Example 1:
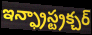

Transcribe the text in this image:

ఇన్ఫ్రాస్ట్రక్చర్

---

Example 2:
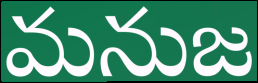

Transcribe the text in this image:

మనుజ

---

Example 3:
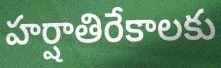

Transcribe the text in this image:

హర్షాతిరేకాలకు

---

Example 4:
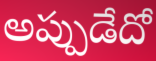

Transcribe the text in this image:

అప్పుడేదో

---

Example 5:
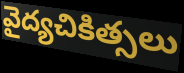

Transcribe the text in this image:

వైద్యచికిత్సలు